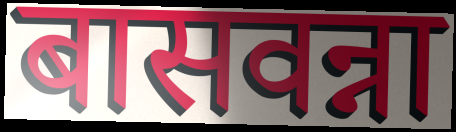
बासवन्ना